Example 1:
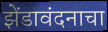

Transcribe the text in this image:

झेंडावंदनाचा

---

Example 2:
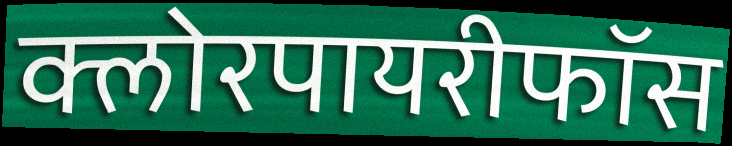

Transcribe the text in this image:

क्लोरपायरीफॉस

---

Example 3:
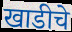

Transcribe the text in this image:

खाडीचे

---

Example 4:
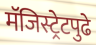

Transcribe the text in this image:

मॅजिस्ट्रेटपुढे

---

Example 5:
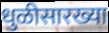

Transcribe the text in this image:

धुळीसारख्या